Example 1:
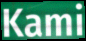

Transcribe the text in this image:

Kami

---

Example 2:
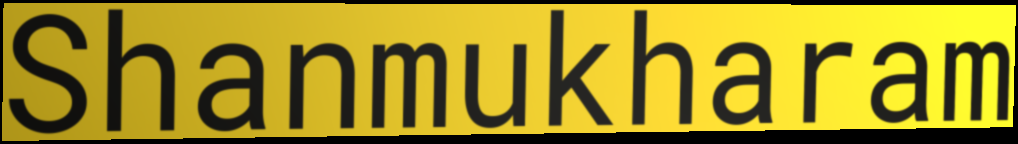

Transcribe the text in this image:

Shanmukharam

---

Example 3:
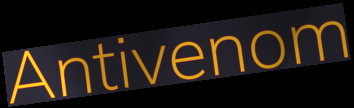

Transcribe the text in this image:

Antivenom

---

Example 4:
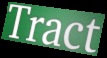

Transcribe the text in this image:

Tract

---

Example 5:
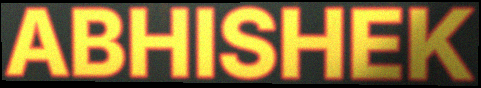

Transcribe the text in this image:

ABHISHEK